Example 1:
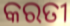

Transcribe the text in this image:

କରତୀ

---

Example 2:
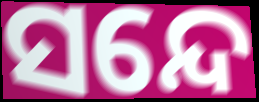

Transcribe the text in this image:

ସନ୍ଦେ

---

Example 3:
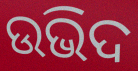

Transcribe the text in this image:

ଉଭିଦ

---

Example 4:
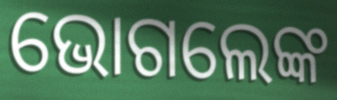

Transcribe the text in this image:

ଭୋଗଲେଙ୍କ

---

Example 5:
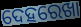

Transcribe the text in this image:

ଦେହରେଖା